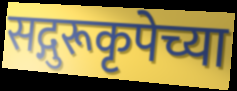
सद्गुरूकृपेच्या